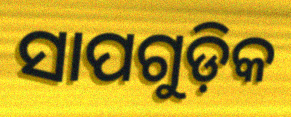
ସାପଗୁଡ଼ିକ